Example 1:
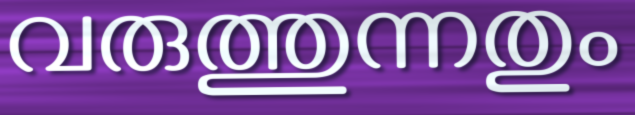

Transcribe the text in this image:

വരുത്തുന്നതും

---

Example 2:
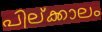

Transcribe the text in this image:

പില്ക്കാലം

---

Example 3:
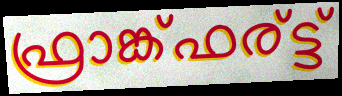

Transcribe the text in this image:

ഫ്രാങ്ക്ഫര്ട്ട്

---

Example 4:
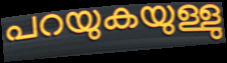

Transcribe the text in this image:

പറയുകയുള്ളു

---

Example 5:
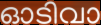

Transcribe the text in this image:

ഓടിവാ